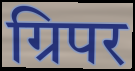
ग्रिपर